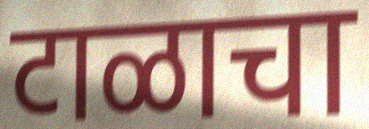
टाळाचा